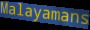
Malayamans